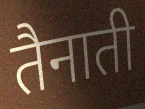
तैनाती